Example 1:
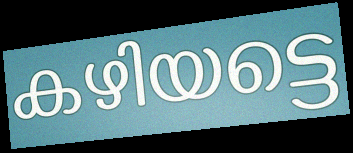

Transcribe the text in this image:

കഴിയട്ടെ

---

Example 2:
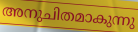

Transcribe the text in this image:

അനുചിതമാകുന്നു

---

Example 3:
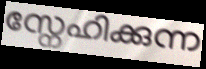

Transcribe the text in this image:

സ്നേഹിക്കുന്ന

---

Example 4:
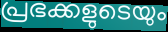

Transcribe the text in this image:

പ്രഭക്കളുടെയും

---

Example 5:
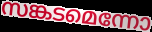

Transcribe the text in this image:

സങ്കടമെന്നോ